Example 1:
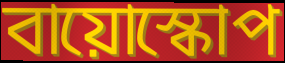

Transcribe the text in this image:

বায়োস্কোপ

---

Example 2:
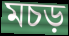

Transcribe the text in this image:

মচড়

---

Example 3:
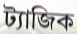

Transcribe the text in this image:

ট্যাজিক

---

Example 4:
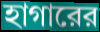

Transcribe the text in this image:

হাগারের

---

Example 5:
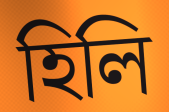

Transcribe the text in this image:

হিলি